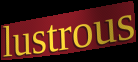
lustrous